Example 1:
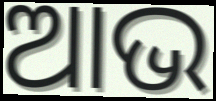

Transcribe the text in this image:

ଆଭ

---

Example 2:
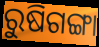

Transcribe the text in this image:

ରୁଷିଗଙ୍ଗା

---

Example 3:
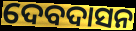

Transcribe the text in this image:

ଦେବଦାସନ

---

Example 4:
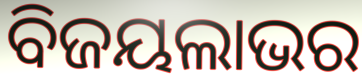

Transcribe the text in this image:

ବିଜୟଲାଭର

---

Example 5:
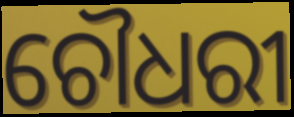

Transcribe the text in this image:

ଚୌଧରୀ